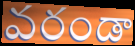
వరండా